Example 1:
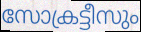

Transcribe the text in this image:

സോക്രട്ടീസും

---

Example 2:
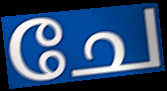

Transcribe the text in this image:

ചേ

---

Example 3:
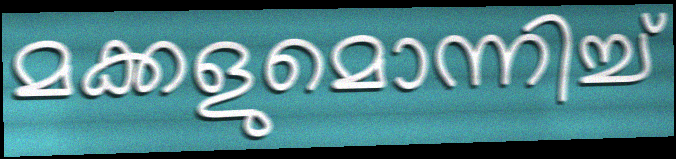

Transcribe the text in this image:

മക്കളുമൊന്നിച്ച്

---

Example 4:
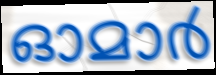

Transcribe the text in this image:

ഓമാർ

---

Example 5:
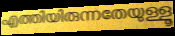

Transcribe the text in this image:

എത്തിയിരുന്നതേയുള്ളൂ